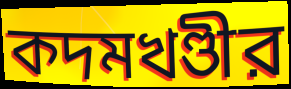
কদমখণ্ডীর